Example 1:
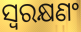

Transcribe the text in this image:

ସ୍ୱରକ୍ଷଣଂ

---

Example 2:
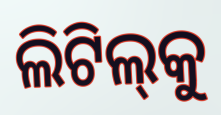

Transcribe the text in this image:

ଲିଟିଲ୍‌କୁ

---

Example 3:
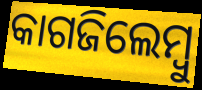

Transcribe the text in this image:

କାଗଜିଲେମ୍ବୁ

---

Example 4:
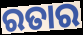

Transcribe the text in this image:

ରତାର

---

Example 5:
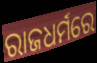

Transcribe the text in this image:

ରାଜଧର୍ମରେ